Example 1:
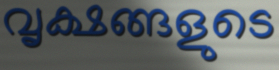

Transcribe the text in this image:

വൃക്ഷങ്ങളുടെ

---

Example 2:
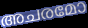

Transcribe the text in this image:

അചരമോ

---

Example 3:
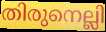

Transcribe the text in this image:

തിരുനെല്ലി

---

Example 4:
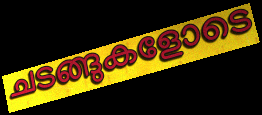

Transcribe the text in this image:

ചടങ്ങുകളോടെ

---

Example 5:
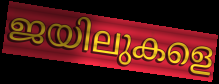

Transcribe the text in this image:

ജയിലുകളെ